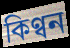
কিণ্বন